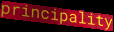
principality